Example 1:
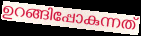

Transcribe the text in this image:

ഉറങ്ങിപ്പോകുന്നത്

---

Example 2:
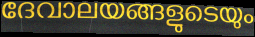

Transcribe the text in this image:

ദേവാലയങ്ങളുടെയും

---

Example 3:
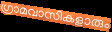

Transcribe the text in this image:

ഗ്രാമവാസികളാരും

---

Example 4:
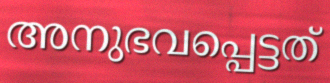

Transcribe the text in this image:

അനുഭവപ്പെട്ടത്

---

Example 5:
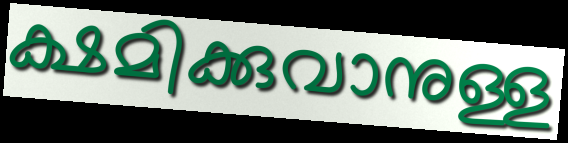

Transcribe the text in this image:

ക്ഷമിക്കുവാനുള്ള